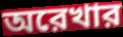
অরেখার